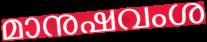
മാനുഷവംശ